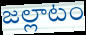
జల్లాటం